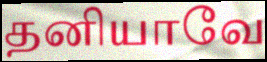
தனியாவே